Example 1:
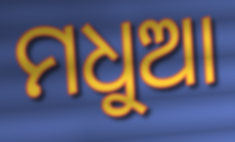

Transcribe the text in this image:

ମଧୁଆ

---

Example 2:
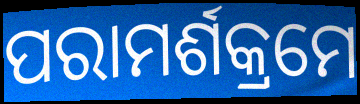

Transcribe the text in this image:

ପରାମର୍ଶକ୍ରମେ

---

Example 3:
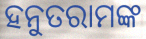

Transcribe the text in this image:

ହନୁତରାମଙ୍କ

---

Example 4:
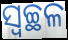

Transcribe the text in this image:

ସ୍ୱଚ୍ଛଳ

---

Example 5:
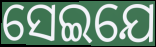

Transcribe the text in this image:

ସେଇଯେ